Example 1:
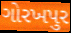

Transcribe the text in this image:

ગોરખપુર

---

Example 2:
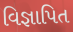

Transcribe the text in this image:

વિજ્ઞાપિત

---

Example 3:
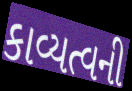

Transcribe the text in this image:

કાવ્યત્વની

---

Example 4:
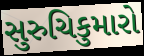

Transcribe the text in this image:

સુરુચિકુમારો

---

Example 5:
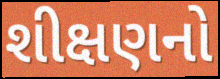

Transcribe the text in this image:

શીક્ષણનો